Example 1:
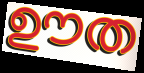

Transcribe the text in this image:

ഊത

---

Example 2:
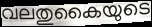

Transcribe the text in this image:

വലതുകൈയുടെ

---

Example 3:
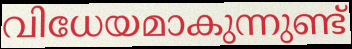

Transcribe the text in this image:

വിധേയമാകുന്നുണ്ട്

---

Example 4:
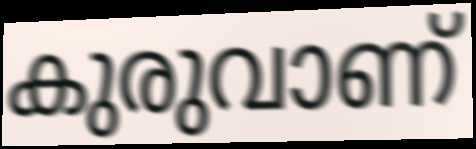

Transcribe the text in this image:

കുരുവാണ്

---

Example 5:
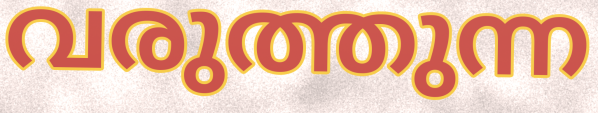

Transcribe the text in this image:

വരുത്തുന്ന